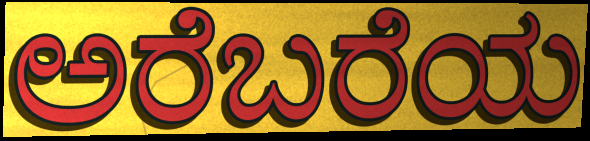
ಅರೆಬರೆಯ